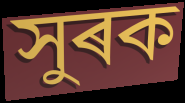
সুৰক